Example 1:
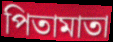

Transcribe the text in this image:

পিতামাতা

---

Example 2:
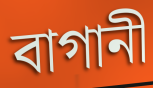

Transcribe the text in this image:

বাগানী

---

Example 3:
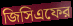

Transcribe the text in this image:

জিসিএফের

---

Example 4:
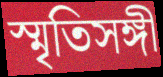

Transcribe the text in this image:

স্মৃতিসঙ্গী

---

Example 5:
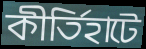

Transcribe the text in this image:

কীর্তিহাটে